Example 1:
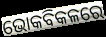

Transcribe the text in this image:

ଭୋକବିକଳରେ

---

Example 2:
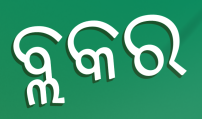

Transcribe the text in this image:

ବ୍ଲକର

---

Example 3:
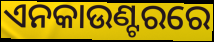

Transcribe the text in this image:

ଏନକାଉଣ୍ଟରରେ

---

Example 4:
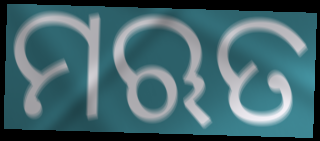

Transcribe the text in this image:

ମଋତ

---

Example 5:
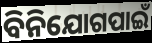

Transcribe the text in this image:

ବିନିଯୋଗପାଇଁ